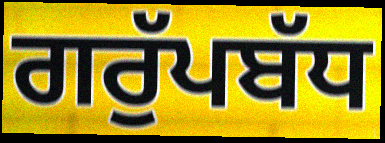
ਗਰੁੱਪਬੱਧ